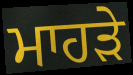
ਮਾਹੜੇ